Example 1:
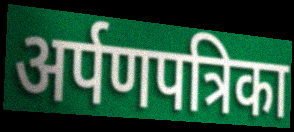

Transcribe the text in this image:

अर्पणपत्रिका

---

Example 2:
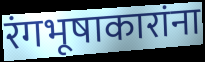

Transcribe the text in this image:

रंगभूषाकारांना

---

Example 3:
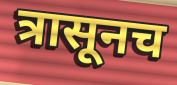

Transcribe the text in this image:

त्रासूनच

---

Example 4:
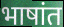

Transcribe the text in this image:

भाषांत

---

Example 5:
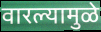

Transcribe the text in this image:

वारल्यामुळे